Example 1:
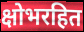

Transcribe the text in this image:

क्षोभरहित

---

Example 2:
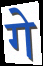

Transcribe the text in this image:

गे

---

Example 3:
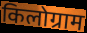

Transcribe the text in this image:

किलोग्राम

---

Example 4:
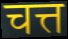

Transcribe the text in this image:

चत्त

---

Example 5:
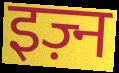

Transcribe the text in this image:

इज़्न